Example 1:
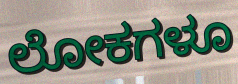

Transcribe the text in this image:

ಲೋಕಗಳೂ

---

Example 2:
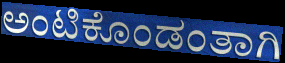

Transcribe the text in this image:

ಅಂಟಿಕೊಂಡಂತಾಗಿ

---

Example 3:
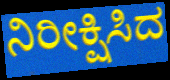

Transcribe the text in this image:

ನಿರೀಕ್ಷಿಸಿದ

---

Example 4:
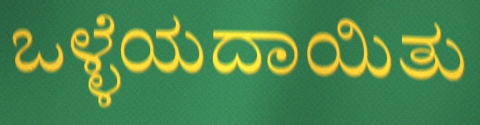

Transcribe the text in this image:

ಒಳ್ಳೆಯದಾಯಿತು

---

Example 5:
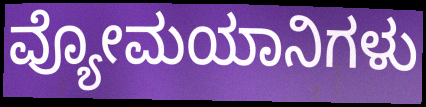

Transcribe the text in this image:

ವ್ಯೋಮಯಾನಿಗಳು